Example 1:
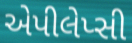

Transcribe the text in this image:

એપીલેપ્સી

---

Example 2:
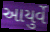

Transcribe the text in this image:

આયુર્વે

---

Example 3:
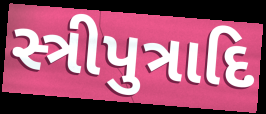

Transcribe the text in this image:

સ્ત્રીપુત્રાદિ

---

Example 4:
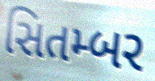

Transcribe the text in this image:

સિતમ્બર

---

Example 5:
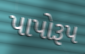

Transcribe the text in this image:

પાપોરૂપ